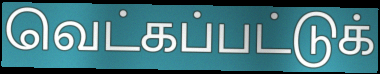
வெட்கப்பட்டுக்